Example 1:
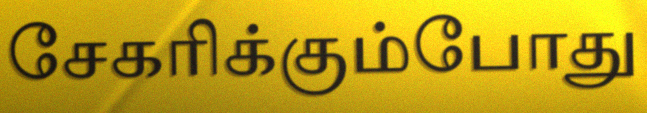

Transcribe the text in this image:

சேகரிக்கும்போது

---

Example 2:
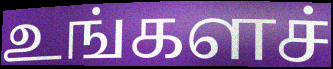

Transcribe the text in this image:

உங்களச்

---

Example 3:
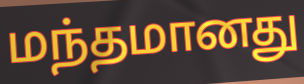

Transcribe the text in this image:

மந்தமானது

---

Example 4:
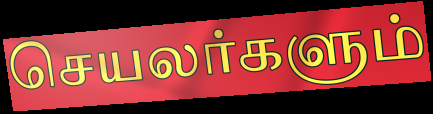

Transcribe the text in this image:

செயலர்களும்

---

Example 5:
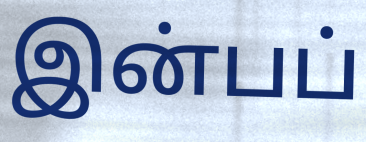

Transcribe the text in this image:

இன்பப்